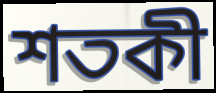
শতকী